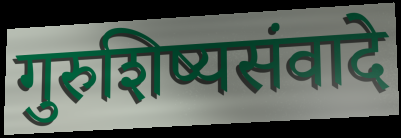
गुरुशिष्यसंवादे